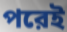
পরেই